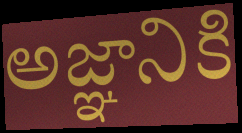
అజ్ఞానికి